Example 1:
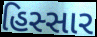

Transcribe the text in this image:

હિસ્સાર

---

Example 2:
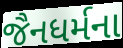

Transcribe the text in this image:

જૈનધર્મના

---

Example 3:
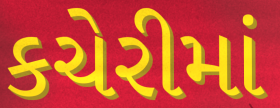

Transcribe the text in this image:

કચેરીમાં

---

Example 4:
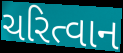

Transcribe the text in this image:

ચરિત્વાન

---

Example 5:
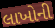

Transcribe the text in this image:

લાખોની